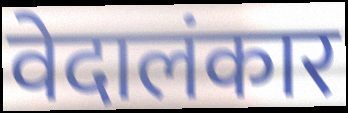
वेदालंकार